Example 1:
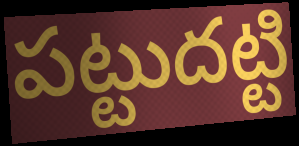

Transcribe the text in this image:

పట్టుదట్టి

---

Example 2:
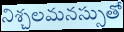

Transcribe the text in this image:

నిశ్చలమనస్సుతో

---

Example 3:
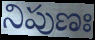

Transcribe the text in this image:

నిపుణః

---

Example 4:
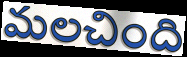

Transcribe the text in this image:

మలచింది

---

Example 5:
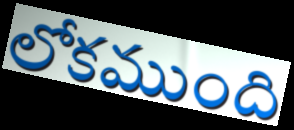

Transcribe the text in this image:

లోకముంది